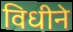
विधीने